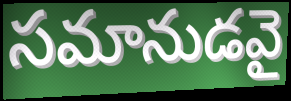
సమానుడవై